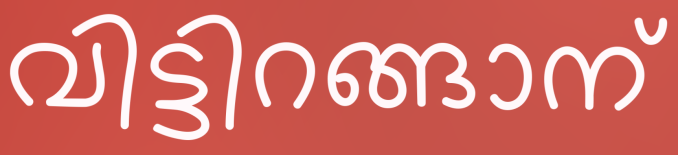
വിട്ടിറങ്ങാന്